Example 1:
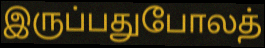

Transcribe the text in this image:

இருப்பதுபோலத்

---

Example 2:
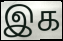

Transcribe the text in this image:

இக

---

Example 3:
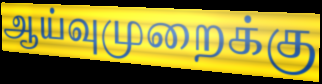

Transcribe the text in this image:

ஆய்வுமுறைக்கு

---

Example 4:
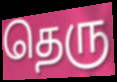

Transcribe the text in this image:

தெரு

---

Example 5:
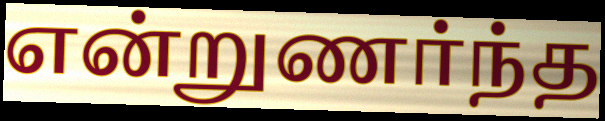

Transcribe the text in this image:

என்றுணர்ந்த